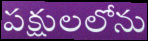
పక్షులలోను